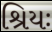
શ્રિયઃ